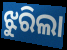
ଝୁରିଲା